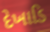
દેખાડિ